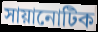
সায়ানোটিক